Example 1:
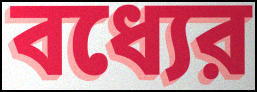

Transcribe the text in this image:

বধ্যের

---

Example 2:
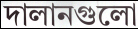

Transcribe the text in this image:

দালানগুলো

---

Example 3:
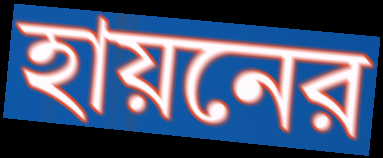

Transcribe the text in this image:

হায়নের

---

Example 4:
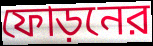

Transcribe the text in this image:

ফোড়নের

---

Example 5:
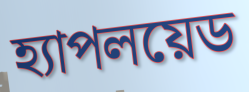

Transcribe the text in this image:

হ্যাপলয়েড